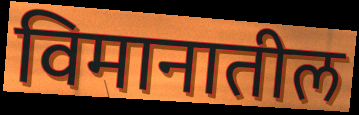
विमानातील